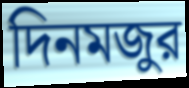
দিনমজুর